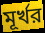
মূর্খর